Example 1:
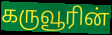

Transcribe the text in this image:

கருவூரின்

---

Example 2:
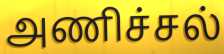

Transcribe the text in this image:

அணிச்சல்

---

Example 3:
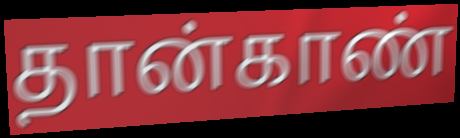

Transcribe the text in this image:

தான்காண்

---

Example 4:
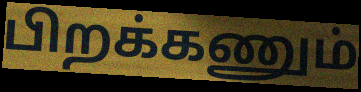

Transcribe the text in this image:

பிறக்கணும்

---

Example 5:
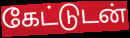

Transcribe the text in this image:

கேட்டுடன்